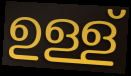
ഉള്ള്